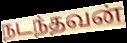
நடந்தவன்